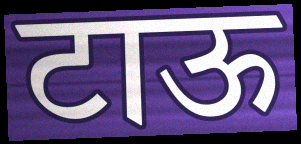
टाऊ